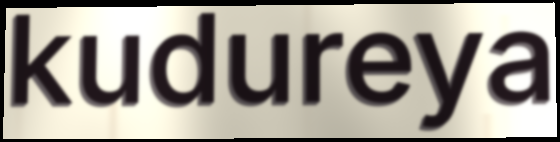
kudureya